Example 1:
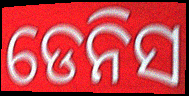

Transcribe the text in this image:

ଡେନିସ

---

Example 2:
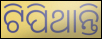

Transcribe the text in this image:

ଟିପିଥାନ୍ତି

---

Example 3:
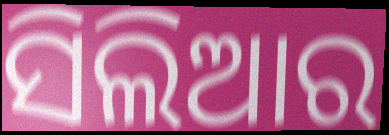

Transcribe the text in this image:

ସିଲିଆର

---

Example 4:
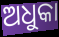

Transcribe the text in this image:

ଅଧୁକା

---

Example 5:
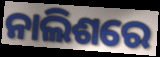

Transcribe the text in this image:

ନାଲିଶରେ